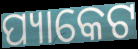
ପ୍ଯାକେଟ